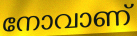
നോവാണ്